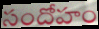
సందోహం